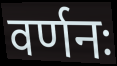
वर्णनः